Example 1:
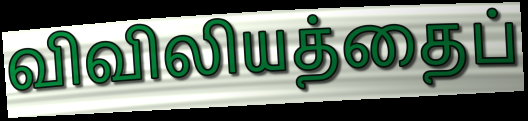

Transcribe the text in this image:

விவிலியத்தைப்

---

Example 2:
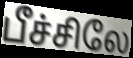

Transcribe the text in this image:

பீச்சிலே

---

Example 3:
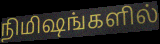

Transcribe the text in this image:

நிமிஷங்களில்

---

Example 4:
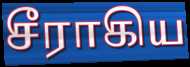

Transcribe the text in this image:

சீராகிய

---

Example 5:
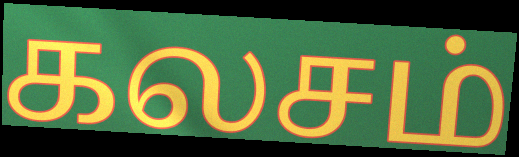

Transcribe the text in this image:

கலசம்